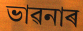
ভাৱনাৰ